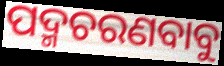
ପଦ୍ମଚରଣବାବୁ